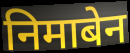
निमाबेन